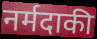
नर्मदाकी